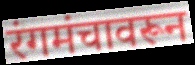
रंगमंचावरून